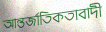
আন্তর্জাতিকতাবাদী